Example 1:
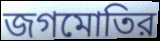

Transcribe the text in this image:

জগমোতির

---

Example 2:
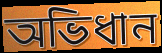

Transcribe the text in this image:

অভিধান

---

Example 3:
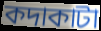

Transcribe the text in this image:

কদাকাটা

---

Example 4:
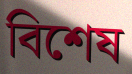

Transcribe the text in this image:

বিশেষ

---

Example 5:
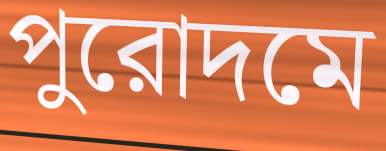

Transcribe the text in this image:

পুরোদমে